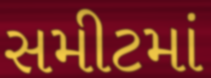
સમીટમાં